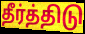
தீர்த்திடு